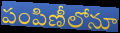
పంపిణీలోనూ